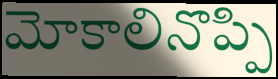
మోకాలినొప్పి